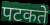
पटकते